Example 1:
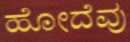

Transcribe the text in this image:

ಹೋದೆವು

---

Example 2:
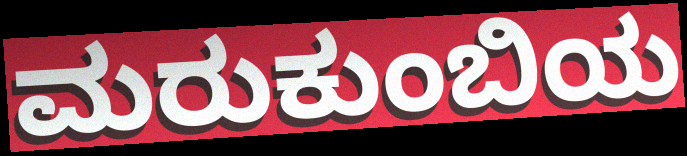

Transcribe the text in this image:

ಮರುಕುಂಬಿಯ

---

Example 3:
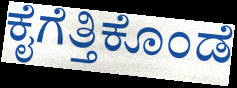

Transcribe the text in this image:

ಕೈಗೆತ್ತಿಕೊಂಡೆ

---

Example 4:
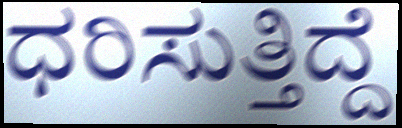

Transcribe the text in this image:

ಧರಿಸುತ್ತಿದ್ದೆ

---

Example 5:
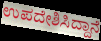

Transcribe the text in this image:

ಉಪದೇಶಿಸಿದ್ದಾನೆ